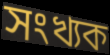
সংখ্যক